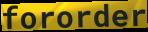
fororder